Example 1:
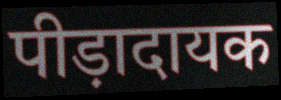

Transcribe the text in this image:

पीड़ादायक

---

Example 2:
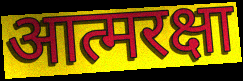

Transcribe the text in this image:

आत्मरक्षा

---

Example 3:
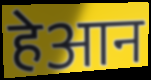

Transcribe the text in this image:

हेआन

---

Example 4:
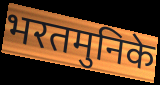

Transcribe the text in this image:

भरतमुनिके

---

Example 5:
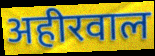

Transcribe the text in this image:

अहीरवाल